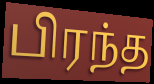
பிரந்த